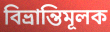
বিভ্রান্তিমূলক